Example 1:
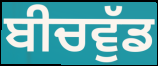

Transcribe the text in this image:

ਬੀਚਵੁੱਡ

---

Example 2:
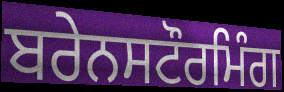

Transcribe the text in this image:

ਬਰੇਨਸਟੌਰਮਿੰਗ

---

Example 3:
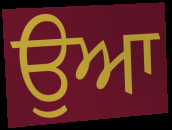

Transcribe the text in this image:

ਉਆ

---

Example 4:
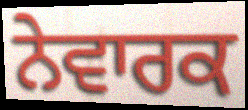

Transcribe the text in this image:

ਨੇਵਾਰਕ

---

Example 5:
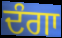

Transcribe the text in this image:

ਦੰਗਾ